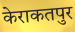
केराकतपुर